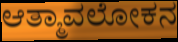
ಆತ್ಮಾವಲೋಕನ